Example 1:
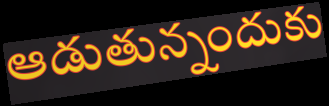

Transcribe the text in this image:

ఆడుతున్నందుకు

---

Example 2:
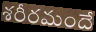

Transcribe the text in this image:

శరీరమందే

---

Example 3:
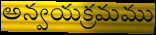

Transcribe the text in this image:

అన్వయక్రమము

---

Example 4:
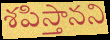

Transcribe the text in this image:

శపిస్తానని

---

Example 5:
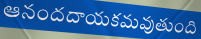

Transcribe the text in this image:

ఆనందదాయకమవుతుంది